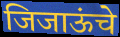
जिजाऊंचे